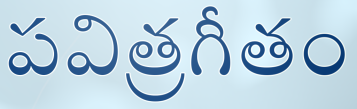
పవిత్రగీతం